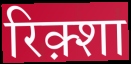
रिक़्शा